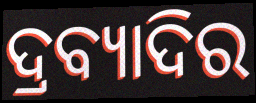
ଦ୍ରବ୍ୟାଦିର